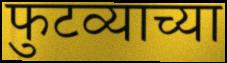
फुटव्याच्या